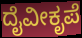
ದೈವೀಕೃಪೆ